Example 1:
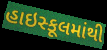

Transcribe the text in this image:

હાઇસ્કૂલમાંથી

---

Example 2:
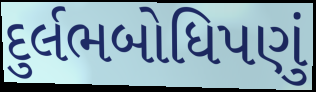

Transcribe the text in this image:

દુર્લભબોધિપણું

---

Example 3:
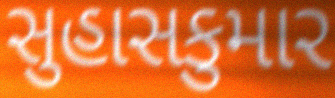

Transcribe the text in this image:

સુહાસકુમાર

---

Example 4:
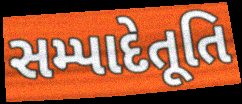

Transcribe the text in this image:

સમ્પાદેતૂતિ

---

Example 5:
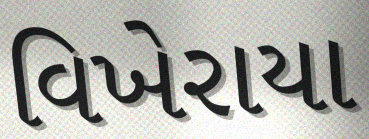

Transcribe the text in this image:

વિખેરાયા